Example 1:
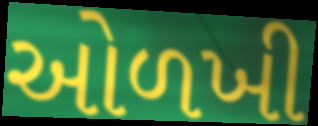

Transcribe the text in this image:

ઓળખી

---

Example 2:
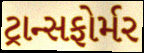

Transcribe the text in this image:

ટ્રાન્સફોર્મર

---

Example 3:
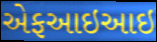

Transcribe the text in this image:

એફઆઇઆઇ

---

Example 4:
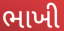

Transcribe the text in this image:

ભાખી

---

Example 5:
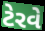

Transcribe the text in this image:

ટેરવે